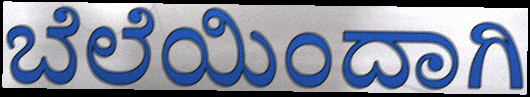
ಬೆಲೆಯಿಂದಾಗಿ